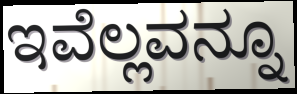
ಇವೆಲ್ಲವನ್ನೂ